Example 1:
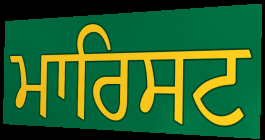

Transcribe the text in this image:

ਮਾਰਿਸਟ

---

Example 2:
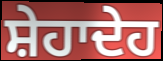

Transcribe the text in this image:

ਸ਼ੇਹਾਦੇਹ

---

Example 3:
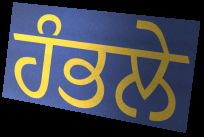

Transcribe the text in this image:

ਹੰਭਲੇ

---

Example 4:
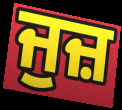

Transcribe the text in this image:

ਜੁਜ਼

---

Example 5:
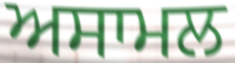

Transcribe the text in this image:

ਅਸਾਮਲ